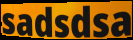
sadsdsa